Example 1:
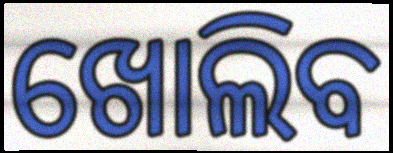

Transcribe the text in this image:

ଖୋଲିବ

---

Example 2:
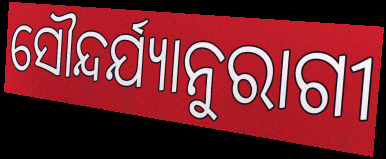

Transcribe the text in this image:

ସୌନ୍ଦର୍ଯ୍ୟାନୁରାଗୀ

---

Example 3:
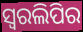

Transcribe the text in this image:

ସ୍ୱରଲିପିର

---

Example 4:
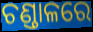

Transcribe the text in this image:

ଚଣ୍ଡାଳରେ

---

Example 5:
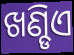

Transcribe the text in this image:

ଖଣ୍ଡିଏ